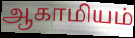
ஆகாமியம்